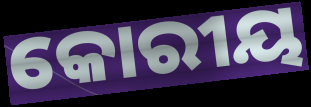
କୋରୀୟ